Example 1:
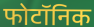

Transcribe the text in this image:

फोटॉनिक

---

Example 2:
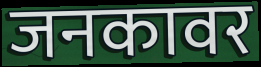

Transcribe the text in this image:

जनकावर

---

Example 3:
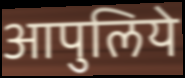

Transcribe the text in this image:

आपुलिये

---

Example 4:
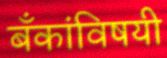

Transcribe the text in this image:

बँकांविषयी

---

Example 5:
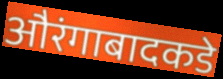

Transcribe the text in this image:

औरंगाबादकडे